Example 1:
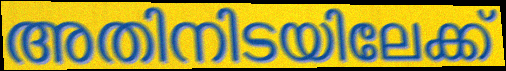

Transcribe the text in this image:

അതിനിടയിലേക്ക്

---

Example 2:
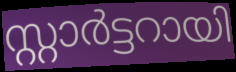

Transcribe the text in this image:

സ്റ്റാർട്ടറായി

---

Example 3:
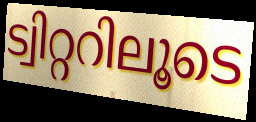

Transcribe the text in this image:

ട്വിറ്ററിലൂടെ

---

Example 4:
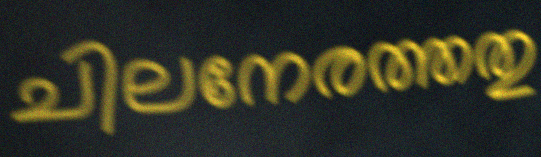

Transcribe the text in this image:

ചിലനേരത്തതു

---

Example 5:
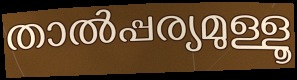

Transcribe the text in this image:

താൽപ്പര്യമുള്ളൂ